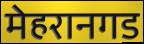
मेहरानगड